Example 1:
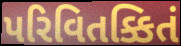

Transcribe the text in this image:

પરિવિતક્કિતં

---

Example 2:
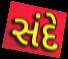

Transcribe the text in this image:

સંદે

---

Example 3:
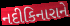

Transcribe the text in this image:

નદીકિનારાને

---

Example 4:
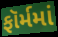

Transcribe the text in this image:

ફૉર્મમાં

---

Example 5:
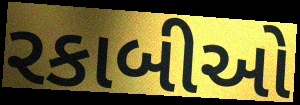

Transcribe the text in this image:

રકાબીઓ